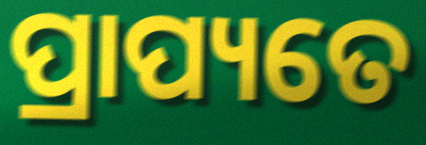
ପ୍ରାପ୍ୟତେ